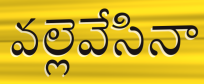
వల్లెవేసినా